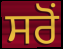
ਸਰੋਂ